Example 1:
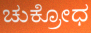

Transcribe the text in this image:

ಚುಕ್ರೋಧ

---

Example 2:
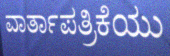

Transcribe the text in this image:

ವಾರ್ತಾಪತ್ರಿಕೆಯು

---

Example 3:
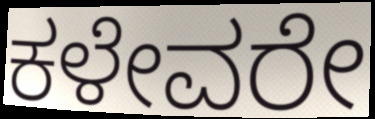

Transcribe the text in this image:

ಕಳೇವರೇ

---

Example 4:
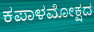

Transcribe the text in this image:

ಕಪಾಳಮೋಕ್ಷದ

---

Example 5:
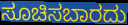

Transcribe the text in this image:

ಸೂಚಿಸಬಾರದು